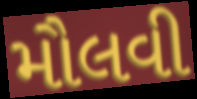
મૌલવી